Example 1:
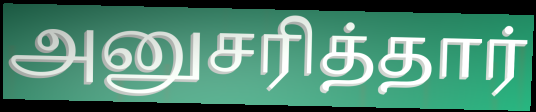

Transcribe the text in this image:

அனுசரித்தார்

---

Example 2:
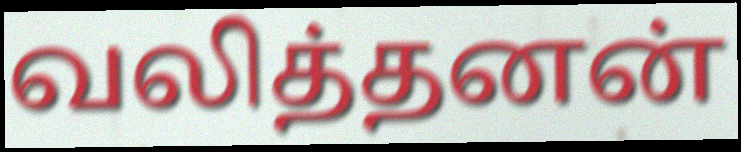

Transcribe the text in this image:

வலித்தனன்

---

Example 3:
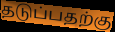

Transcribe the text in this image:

தடுப்பதற்கு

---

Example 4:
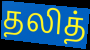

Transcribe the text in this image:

தலித்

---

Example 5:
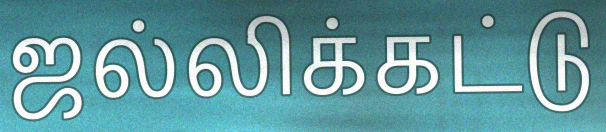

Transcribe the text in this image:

ஜல்லிக்கட்டு